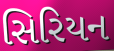
સિરિયન